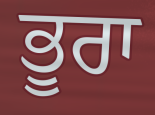
ਭੂਰਾ